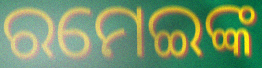
ରମେଇଙ୍କ